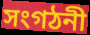
সংগঠনী